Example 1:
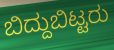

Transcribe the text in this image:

ಬಿದ್ದುಬಿಟ್ಟರು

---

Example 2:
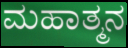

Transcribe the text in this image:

ಮಹಾತ್ಮನ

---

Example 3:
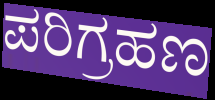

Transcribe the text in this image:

ಪರಿಗ್ರಹಣ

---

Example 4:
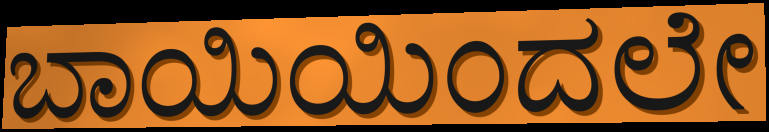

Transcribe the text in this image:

ಬಾಯಿಯಿಂದಲೇ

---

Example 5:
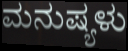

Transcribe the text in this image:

ಮನುಷ್ಯಳು